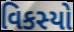
વિકસ્યો